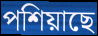
পশিয়াছে